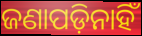
ଜଣାପଡ଼ିନାହିଁ